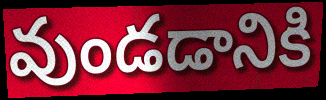
వుండడానికి